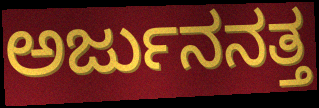
ಅರ್ಜುನನತ್ತ